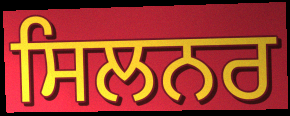
ਸਿਲਨਰ